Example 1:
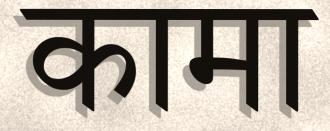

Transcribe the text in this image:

कामा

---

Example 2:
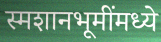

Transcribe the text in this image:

स्मशानभूमींमध्ये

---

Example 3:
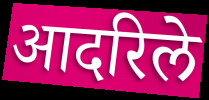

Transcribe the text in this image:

आदरिले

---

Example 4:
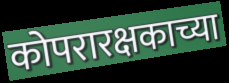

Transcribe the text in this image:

कोपरारक्षकाच्या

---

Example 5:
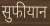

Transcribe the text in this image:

सुफीयान